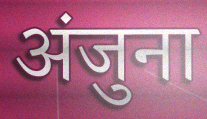
अंजुना